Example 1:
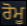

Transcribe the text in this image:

ਰੋਮੂ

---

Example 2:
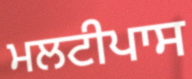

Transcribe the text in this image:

ਮਲਟੀਪਾਸ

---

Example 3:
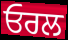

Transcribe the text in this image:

ਓਰਲ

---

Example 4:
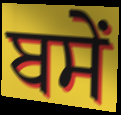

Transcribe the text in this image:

ਬਸੇਂ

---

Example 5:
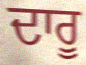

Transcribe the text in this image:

ਦਾਰੂ